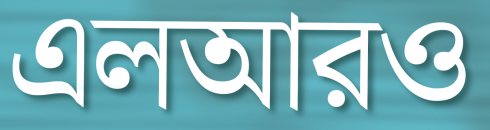
এলআরও